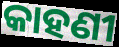
କାହଣୀ